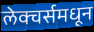
लेक्चर्समधून